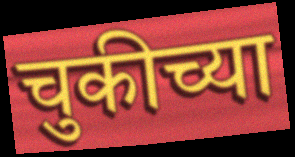
चुकीच्या